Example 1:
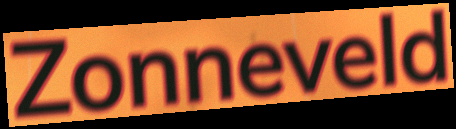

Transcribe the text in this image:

Zonneveld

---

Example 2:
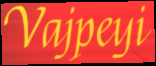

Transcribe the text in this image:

Vajpeyi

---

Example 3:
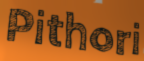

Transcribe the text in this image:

Pithori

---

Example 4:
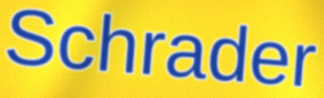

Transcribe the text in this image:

Schrader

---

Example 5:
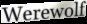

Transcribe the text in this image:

Werewolf